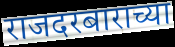
राजदरबाराच्या